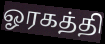
ஓரகத்தி